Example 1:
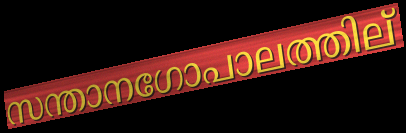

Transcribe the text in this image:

സന്താനഗോപാലത്തില്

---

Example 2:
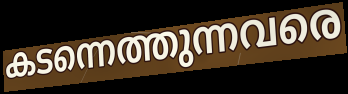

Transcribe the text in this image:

കടന്നെത്തുന്നവരെ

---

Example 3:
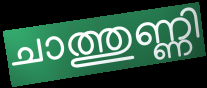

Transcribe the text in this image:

ചാത്തുണ്ണി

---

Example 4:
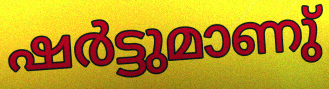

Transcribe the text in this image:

ഷർട്ടുമാണു്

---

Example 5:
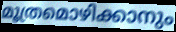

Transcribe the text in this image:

മൂത്രമൊഴിക്കാനും